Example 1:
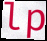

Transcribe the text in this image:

lp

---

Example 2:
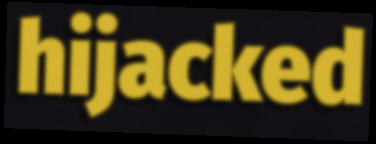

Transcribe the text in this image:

hijacked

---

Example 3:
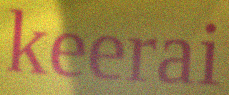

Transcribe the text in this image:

keerai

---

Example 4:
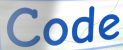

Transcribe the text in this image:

Code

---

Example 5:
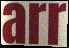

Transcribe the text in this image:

arr